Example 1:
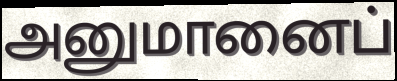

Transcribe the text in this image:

அனுமானைப்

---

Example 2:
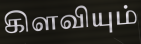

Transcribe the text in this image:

கிளவியும்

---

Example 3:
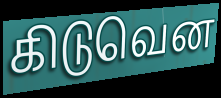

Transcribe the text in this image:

கிடுவென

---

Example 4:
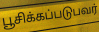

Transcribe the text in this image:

பூசிக்கப்படுபவர்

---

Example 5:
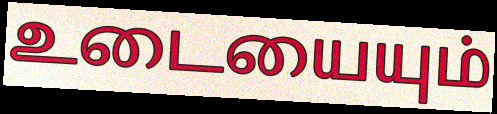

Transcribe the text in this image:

உடையையும்